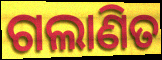
ଗଲାଣିତ